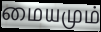
மையமும்